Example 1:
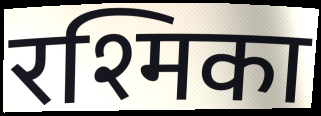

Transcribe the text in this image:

रश्मिका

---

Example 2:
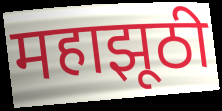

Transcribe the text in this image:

महाझूठी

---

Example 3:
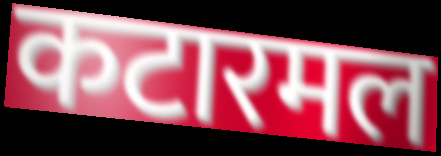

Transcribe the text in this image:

कटारमल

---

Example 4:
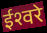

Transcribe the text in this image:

ईश्वरे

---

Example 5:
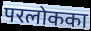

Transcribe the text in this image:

परलोकका